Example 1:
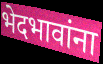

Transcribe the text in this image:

भेदभावांना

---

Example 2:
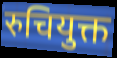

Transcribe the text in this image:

रुचियुक्त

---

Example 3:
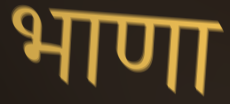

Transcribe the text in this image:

भाणा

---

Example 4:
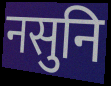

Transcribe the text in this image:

नसुनि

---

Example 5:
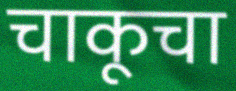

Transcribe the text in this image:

चाकूचा